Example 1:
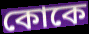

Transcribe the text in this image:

কোকে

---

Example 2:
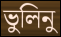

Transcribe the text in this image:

ভুলিনু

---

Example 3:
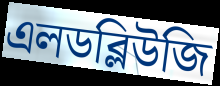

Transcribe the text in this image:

এলডব্লিউজি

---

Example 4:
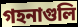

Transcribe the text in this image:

গহনাগুলি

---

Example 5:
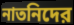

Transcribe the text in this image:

নাতনিদের